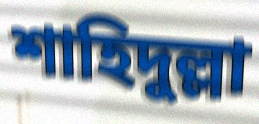
শাহিদুল্লা